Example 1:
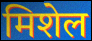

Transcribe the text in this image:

मिशेल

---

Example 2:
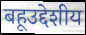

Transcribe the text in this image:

बहूउद्देशीय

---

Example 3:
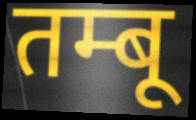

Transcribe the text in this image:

तम्बू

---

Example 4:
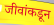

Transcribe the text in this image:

जीवांकडून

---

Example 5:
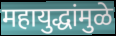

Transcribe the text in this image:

महायुद्धांमुळे